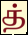
த்